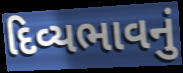
દિવ્યભાવનું